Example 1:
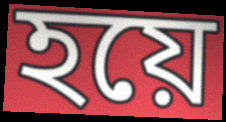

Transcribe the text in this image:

হয়ে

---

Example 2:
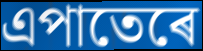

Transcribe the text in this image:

এপাতেৰে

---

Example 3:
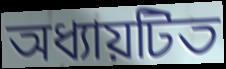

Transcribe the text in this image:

অধ্যায়টিত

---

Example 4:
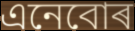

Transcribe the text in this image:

এনেবোৰ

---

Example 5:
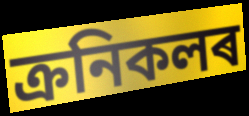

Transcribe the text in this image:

ক্ৰনিকলৰ